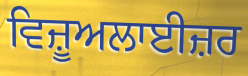
ਵਿਜ਼ੂਅਲਾਈਜ਼ਰ